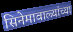
सिनेमावाल्यांच्या